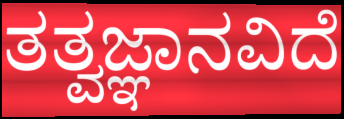
ತತ್ವಜ್ಞಾನವಿದೆ